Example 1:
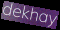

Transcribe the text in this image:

dekhay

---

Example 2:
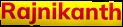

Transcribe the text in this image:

Rajnikanth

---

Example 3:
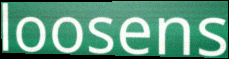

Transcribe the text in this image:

loosens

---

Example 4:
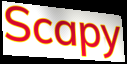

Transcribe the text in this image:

Scapy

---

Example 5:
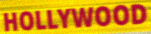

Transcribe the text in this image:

HOLLYWOOD